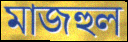
মাজহুল